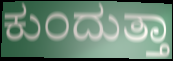
ಕುಂದುತ್ತಾ